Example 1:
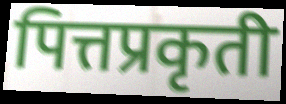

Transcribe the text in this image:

पित्तप्रकृती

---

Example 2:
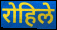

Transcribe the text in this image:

रोहिले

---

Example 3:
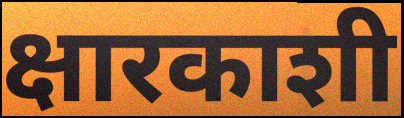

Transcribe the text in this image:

क्षारकाशी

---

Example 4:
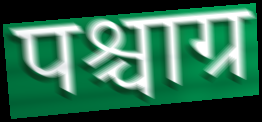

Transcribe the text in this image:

पश्चाग्र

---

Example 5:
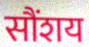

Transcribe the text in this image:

सौंशय